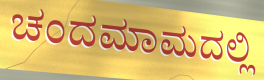
ಚಂದಮಾಮದಲ್ಲಿ